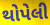
થોપેલી